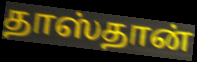
தாஸ்தான்